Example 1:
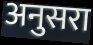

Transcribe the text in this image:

अनुसरा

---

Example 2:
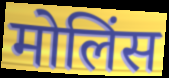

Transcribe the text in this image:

मोलिंस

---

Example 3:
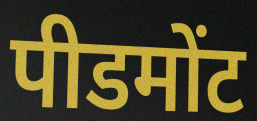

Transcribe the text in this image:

पीडमोंट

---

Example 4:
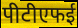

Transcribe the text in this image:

पीटीएफई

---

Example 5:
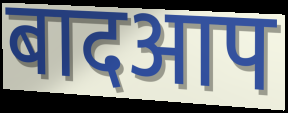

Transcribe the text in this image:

बादआप